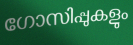
ഗോസിപ്പുകളും